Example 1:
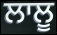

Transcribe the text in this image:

ਲਾਲੂ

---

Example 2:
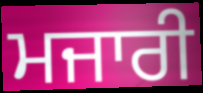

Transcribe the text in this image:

ਮਜਾਰੀ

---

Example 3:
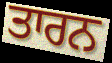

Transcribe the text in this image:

ਤਾਰਨ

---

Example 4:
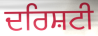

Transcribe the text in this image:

ਦਰਿਸ਼ਟੀ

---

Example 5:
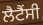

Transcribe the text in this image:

ਲੈਟੈਂਸੀ